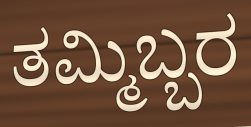
ತಮ್ಮಿಬ್ಬರ